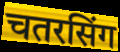
चतरसिंग